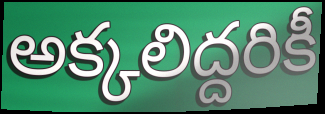
అక్కలిద్దరికీ